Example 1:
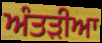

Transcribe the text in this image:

ਅੰਤੜੀਆ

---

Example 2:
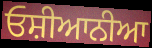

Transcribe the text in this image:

ਓਸ਼ੀਆਨੀਆ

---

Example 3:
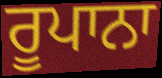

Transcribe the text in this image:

ਰੂਪਾਨਾ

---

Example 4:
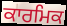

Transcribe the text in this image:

ਕਾਰਮਿਕ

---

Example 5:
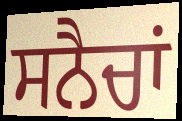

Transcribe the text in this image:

ਸਨੈਚਾਂ